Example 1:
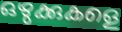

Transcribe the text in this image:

ഒഴുക്കുകളെ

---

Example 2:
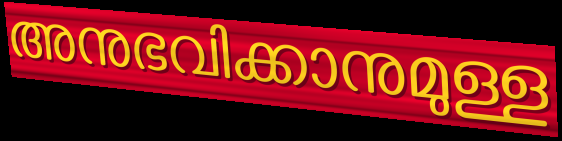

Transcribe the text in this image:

അനുഭവിക്കാനുമുള്ള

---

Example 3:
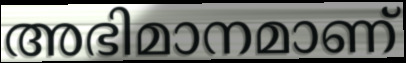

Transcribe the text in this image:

അഭിമാനമാണ്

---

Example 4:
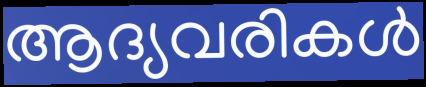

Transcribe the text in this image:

ആദ്യവരികൾ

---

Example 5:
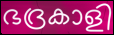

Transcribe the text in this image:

ഭദ്രകാളി